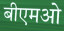
बीएमओ